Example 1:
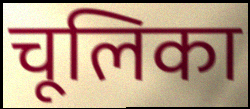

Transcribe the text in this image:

चूलिका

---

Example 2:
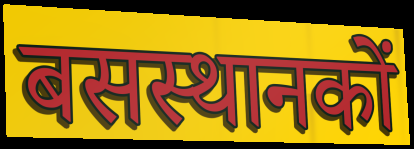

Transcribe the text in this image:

बसस्थानकों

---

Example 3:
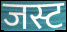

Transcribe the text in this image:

जस्ट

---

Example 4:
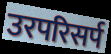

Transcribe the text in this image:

उरपरिसर्प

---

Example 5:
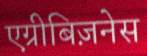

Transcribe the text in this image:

एग्रीबिज़नेस